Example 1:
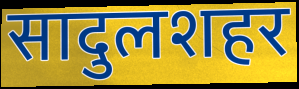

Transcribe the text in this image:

सादुलशहर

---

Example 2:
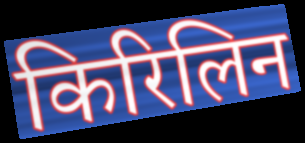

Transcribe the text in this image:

किरिलिन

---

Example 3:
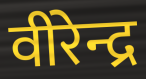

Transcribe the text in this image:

वीरेन्‍द्र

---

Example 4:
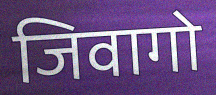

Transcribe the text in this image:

जिवागो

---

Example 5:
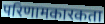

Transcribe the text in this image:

परिणामकारकता